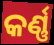
କର୍ଣ୍ଣ